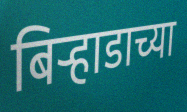
बिऱ्हाडाच्या